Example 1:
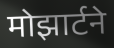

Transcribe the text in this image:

मोझार्टने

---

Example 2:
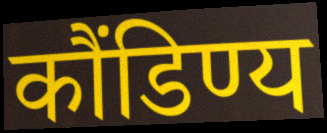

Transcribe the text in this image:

कौंडिण्य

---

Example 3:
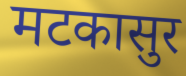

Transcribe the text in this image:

मटकासुर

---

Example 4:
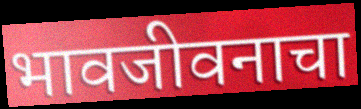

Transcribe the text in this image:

भावजीवनाचा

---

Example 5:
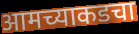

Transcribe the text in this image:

आमच्याकडचा